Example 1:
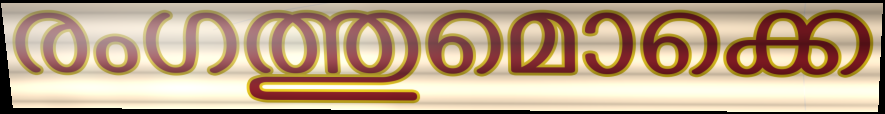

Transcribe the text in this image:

രംഗത്തുമൊക്കെ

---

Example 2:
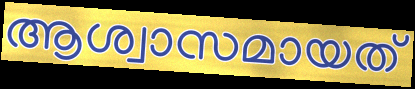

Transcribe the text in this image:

ആശ്വാസമായത്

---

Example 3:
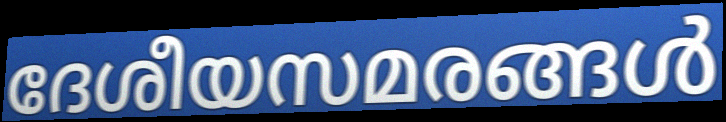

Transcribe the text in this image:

ദേശീയസമരങ്ങൾ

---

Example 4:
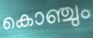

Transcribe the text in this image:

കൊഞ്ചും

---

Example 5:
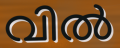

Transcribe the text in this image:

വിൽ